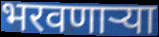
भरवणाऱ्या